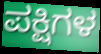
ಪಕ್ಷಿಗಳ